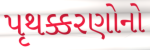
પૃથક્કરણોનો